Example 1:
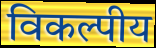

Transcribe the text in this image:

विकल्पीय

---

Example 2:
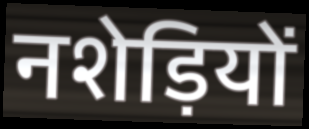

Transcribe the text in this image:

नशेड़ियों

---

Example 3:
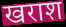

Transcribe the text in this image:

खराश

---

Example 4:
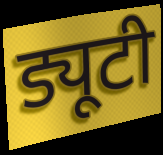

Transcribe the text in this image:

ड्यूटी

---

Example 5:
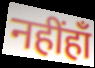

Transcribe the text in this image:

नहींहाँ